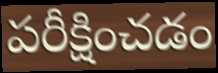
పరీక్షించడం